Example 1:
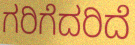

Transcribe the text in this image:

ಗರಿಗೆದರಿದೆ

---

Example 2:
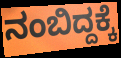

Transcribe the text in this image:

ನಂಬಿದ್ದಕ್ಕೆ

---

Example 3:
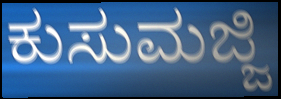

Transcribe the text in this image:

ಕುಸುಮಜ್ಜಿ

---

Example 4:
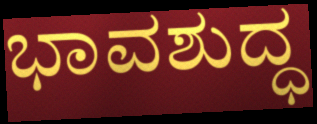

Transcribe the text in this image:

ಭಾವಶುದ್ಧ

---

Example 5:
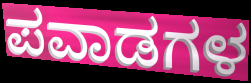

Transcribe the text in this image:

ಪವಾಡಗಳ